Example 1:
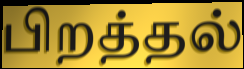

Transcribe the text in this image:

பிறத்தல்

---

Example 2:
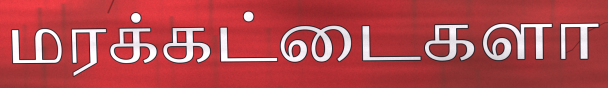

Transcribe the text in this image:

மரக்கட்டைகளா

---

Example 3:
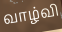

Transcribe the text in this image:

வாழ்வி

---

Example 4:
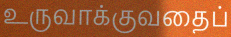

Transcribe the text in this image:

உருவாக்குவதைப்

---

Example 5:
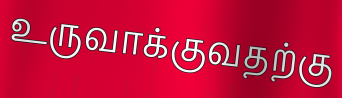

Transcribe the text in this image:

உருவாக்குவதற்கு